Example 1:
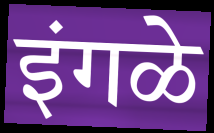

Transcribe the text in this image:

इंगळे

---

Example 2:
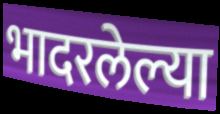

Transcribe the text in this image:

भादरलेल्या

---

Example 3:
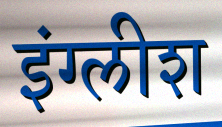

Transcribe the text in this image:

इंग्लीश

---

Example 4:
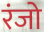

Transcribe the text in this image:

रंजो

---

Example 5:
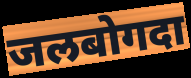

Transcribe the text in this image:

जलबोगदा